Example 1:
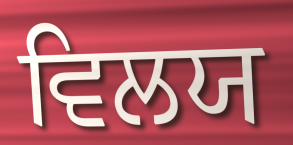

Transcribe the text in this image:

ਵਿਲਯ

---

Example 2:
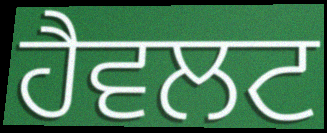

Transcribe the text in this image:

ਹੈਵਲਟ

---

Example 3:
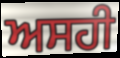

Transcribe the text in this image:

ਅਸਹੀ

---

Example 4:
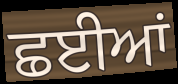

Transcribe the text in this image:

ਛਈਆਂ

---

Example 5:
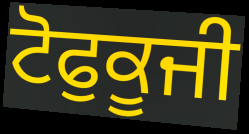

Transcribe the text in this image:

ਟੋਫੁਕੂਜੀ